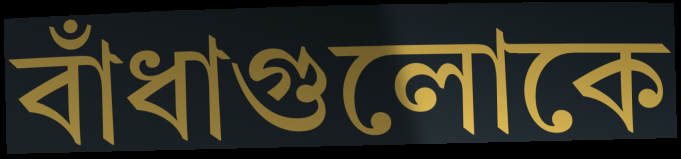
বাঁধাগুলোকে